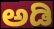
ಅಡಿ